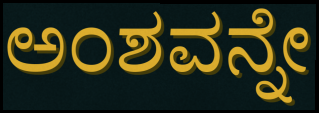
ಅಂಶವನ್ನೇ